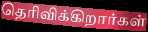
தெரிவிக்கிறார்கள்